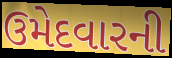
ઉમેદવારની